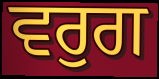
ਵਰੁਗ